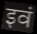
इवं